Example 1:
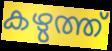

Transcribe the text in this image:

കഴുത്ത്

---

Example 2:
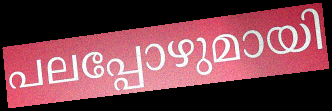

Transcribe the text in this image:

പലപ്പോഴുമായി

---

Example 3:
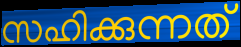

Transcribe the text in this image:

സഹിക്കുന്നത്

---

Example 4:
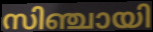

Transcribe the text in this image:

സിഞ്ചായി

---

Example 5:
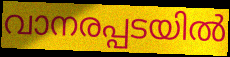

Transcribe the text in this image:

വാനരപ്പടയിൽ